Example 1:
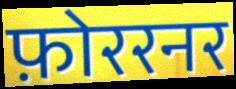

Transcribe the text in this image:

फ़ोररनर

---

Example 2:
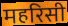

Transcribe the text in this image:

महरिसी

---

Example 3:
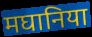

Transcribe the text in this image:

मघानिया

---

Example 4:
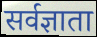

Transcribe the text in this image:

सर्वज्ञाता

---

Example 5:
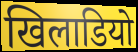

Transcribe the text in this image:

खिलाडियो